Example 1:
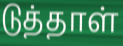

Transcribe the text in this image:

டுத்தாள்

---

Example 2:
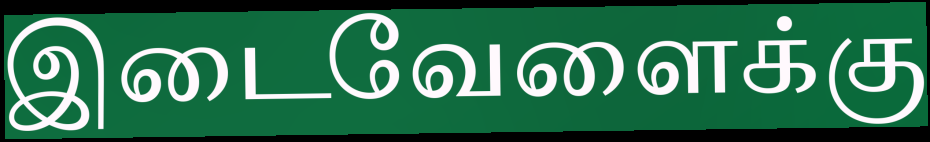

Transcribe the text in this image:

இடைவேளைக்கு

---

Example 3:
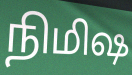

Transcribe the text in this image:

நிமிஷ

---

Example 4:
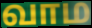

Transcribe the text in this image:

வாம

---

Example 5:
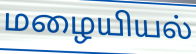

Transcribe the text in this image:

மழையியல்